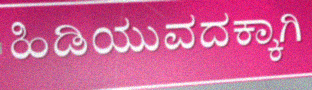
ಹಿಡಿಯುವದಕ್ಕಾಗಿ